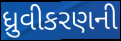
ધ્રુવીકરણની